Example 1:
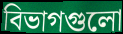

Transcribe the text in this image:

বিভাগগুলো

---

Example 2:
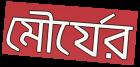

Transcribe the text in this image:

মৌর্যের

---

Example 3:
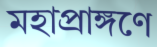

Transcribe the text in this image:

মহাপ্রাঙ্গণে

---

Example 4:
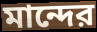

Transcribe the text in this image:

মান্দের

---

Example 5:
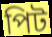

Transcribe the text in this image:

পিট